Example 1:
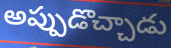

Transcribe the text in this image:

అప్పుడొచ్చాడు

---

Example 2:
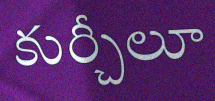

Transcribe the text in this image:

కుర్చీలూ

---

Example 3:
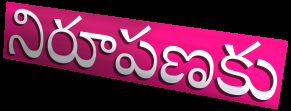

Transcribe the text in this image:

నిరూపణకు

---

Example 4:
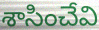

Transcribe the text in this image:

శాసించేవి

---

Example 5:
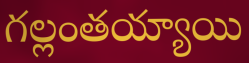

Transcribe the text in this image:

గల్లంతయ్యాయి